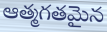
ఆత్మగతమైన